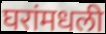
घरांमधली